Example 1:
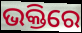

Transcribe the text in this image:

ଭକ୍ତିରେ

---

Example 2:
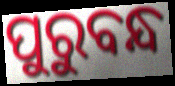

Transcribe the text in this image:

ପୁରୁବନ୍ଧ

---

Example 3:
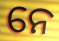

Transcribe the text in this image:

ନେ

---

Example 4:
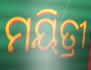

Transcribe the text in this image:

ମୟିତ୍ରୀ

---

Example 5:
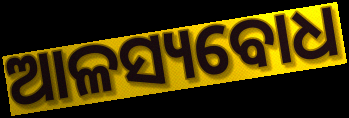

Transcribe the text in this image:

ଆଳସ୍ୟବୋଧ